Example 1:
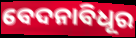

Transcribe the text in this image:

ବେଦନାବିଧୂର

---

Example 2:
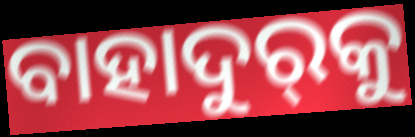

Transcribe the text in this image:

ବାହାଦୁର୍‌କୁ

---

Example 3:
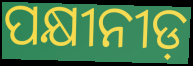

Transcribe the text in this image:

ପକ୍ଷୀନୀଡ଼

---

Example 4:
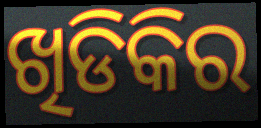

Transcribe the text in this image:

ଖିଡିକିର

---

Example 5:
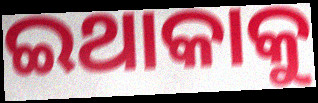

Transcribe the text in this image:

ଇଥାକାକୁ